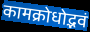
कामक्रोधोद्भवं